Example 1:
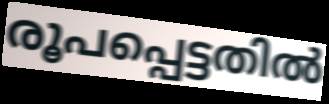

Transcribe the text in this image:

രൂപപ്പെട്ടതിൽ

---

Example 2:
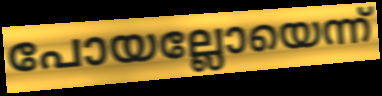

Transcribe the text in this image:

പോയല്ലോയെന്ന്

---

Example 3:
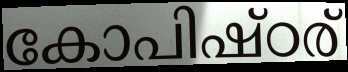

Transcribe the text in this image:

കോപിഷ്ഠര്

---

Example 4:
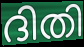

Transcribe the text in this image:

ദിതി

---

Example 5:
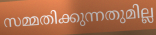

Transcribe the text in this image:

സമ്മതിക്കുന്നതുമില്ല